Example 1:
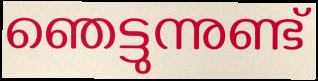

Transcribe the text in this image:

ഞെട്ടുന്നുണ്ട്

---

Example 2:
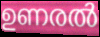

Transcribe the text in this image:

ഉണരൽ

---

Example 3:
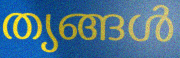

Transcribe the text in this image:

ത്യങ്ങൾ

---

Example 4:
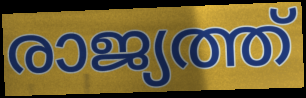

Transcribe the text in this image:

രാജ്യത്ത്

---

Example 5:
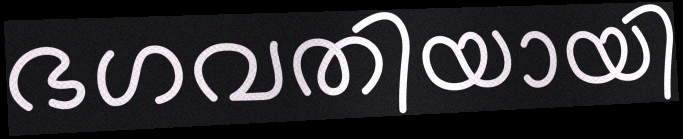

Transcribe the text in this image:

ഭഗവതിയായി